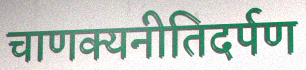
चाणक्यनीतिदर्पण